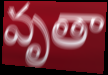
వృతా